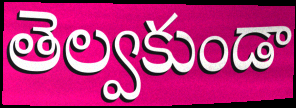
తెల్వకుండా